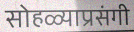
सोहळ्याप्रसंगी